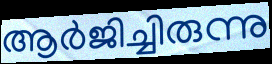
ആർജിച്ചിരുന്നു